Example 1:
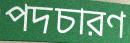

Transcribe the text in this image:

পদচারণ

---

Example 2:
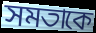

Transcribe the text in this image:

সমতাকে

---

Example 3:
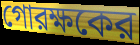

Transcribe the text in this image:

গোরক্ষকের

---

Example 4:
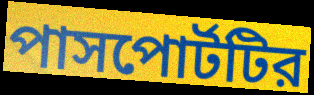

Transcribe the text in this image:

পাসপোর্টটির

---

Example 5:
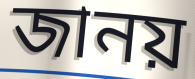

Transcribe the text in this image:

জানয়